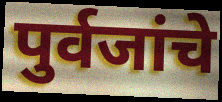
पुर्वजांचे